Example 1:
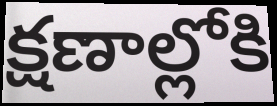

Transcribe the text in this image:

క్షణాల్లోకి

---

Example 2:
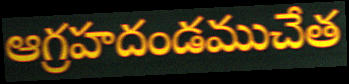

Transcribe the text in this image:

ఆగ్రహదండముచేత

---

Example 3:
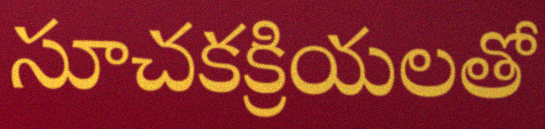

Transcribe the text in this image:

సూచకక్రియలతో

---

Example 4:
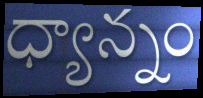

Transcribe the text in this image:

ధ్యాన్నం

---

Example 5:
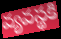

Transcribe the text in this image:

వ్యవస్థకి